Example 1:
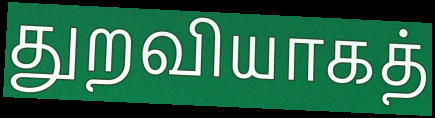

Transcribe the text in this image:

துறவியாகத்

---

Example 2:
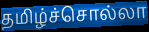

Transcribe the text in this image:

தமிழ்ச்சொல்லா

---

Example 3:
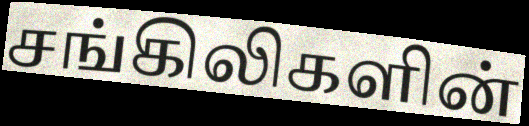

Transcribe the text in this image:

சங்கிலிகளின்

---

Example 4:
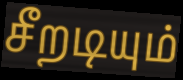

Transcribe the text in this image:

சீறடியும்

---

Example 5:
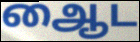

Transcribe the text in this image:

ஆைட